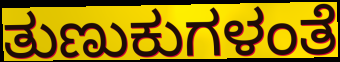
ತುಣುಕುಗಳಂತೆ